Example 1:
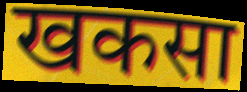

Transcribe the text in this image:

खकसा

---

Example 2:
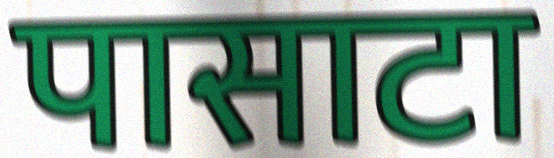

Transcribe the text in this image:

पासाटा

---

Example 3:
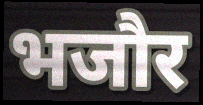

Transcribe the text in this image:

भजौर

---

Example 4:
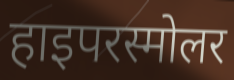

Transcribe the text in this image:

हाइपरस्मोलर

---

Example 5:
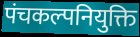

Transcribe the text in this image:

पंचकल्पनियुक्ति